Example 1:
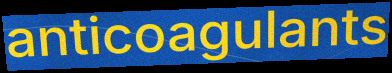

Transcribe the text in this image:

anticoagulants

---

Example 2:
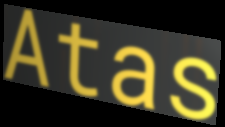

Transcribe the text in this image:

Atas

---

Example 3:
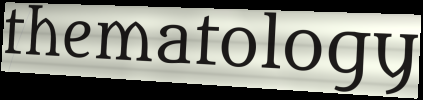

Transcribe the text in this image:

thematology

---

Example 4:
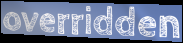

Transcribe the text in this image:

overridden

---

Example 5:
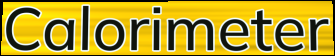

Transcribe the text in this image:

Calorimeter